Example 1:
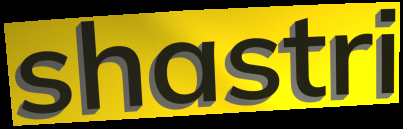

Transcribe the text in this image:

shastri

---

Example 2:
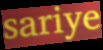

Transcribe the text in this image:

sariye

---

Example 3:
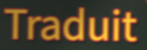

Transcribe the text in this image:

Traduit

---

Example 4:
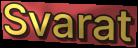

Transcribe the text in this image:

Svarat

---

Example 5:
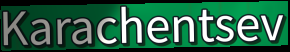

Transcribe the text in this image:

Karachentsev